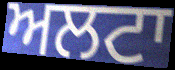
ਅਲਟਾ